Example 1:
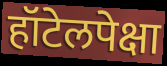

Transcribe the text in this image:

हॉटेलपेक्षा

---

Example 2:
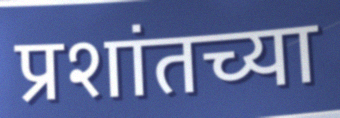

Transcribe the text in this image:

प्रशांतच्या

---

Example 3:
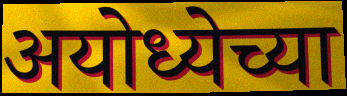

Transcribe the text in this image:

अयोध्येच्या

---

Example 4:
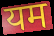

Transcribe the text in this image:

यम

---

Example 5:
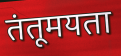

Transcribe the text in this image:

तंतूमयता